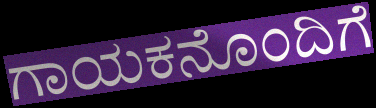
ಗಾಯಕನೊಂದಿಗೆ